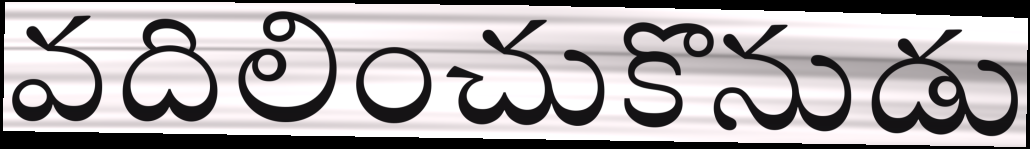
వదిలించుకొనుడు